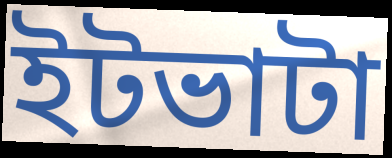
ইটভাটা